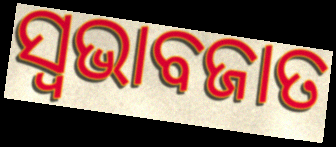
ସ୍ୱଭାବଜାତ